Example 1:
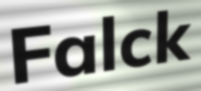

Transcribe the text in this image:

Falck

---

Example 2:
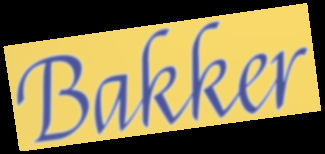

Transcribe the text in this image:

Bakker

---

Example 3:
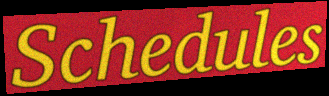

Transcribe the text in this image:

Schedules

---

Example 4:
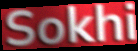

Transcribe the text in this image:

Sokhi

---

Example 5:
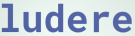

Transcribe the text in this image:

ludere